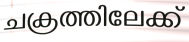
ചക്രത്തിലേക്ക്